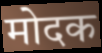
मोदक